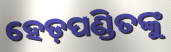
ହେଡ଼ପଣ୍ଡିତଙ୍କୁ